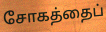
சோகத்தைப்